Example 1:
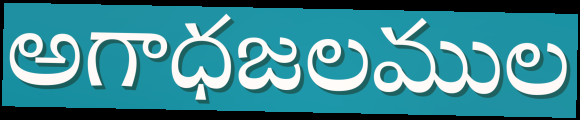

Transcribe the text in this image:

అగాధజలముల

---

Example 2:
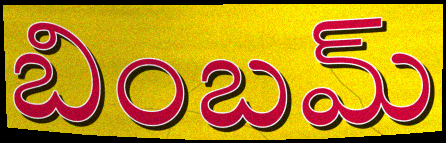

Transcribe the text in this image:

బింబమ్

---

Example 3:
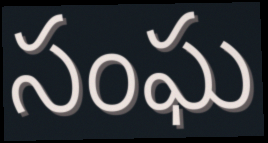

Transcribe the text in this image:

సంఘ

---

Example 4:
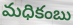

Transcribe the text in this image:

మధికంబు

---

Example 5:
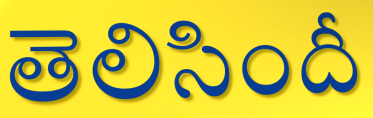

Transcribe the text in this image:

తెలిసిందీ